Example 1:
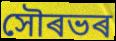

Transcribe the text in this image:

সৌৰভৰ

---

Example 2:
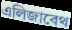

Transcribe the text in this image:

এলিজাবেথ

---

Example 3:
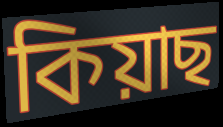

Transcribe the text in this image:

কিয়াছ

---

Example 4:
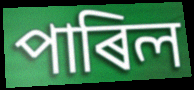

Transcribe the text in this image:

পাৰিল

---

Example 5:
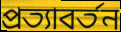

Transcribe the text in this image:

প্ৰত্যাবৰ্তন